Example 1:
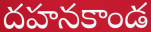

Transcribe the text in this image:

దహనకాండ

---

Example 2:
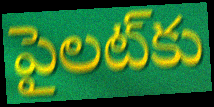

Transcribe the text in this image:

పైలట్‌కు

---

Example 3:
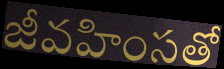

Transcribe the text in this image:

జీవహింసతో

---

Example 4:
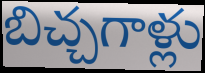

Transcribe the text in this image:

బిచ్చగాళ్లు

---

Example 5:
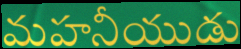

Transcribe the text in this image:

మహనీయుడు